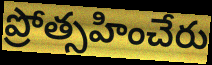
ప్రోత్సహించేరు